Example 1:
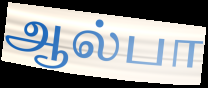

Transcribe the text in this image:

ஆல்பா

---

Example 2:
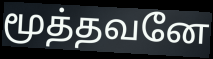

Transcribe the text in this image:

மூத்தவனே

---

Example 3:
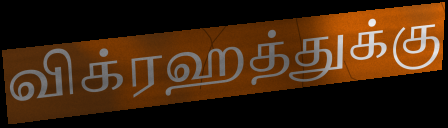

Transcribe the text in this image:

விக்ரஹத்துக்கு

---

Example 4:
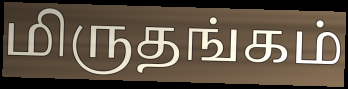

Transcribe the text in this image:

மிருதங்கம்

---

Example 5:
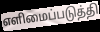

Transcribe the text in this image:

எளிமைப்படுத்தி